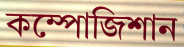
কম্পোজিশান